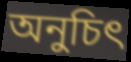
অনুচিৎ